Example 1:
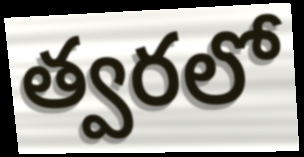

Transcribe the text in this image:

త్వరలో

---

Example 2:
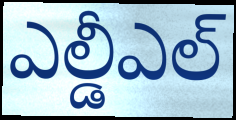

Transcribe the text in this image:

ఎల్డీఎల్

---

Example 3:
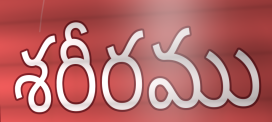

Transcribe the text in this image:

శరీరము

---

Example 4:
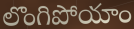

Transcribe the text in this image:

లొంగిపోయాం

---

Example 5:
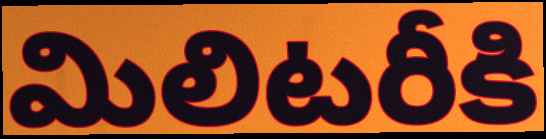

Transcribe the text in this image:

మిలిటరీకి